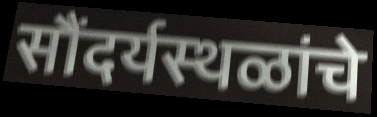
सौंदर्यस्थळांचे